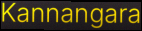
Kannangara